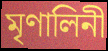
মৃণালিনী